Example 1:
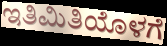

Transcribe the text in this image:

ಇತಿಮಿತಿಯೊಳಗೆ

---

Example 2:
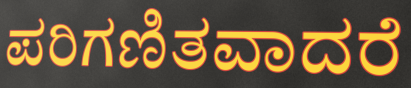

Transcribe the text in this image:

ಪರಿಗಣಿತವಾದರೆ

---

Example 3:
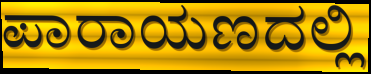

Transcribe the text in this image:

ಪಾರಾಯಣದಲ್ಲಿ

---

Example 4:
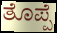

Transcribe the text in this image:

ತೊಪ್ಪೆ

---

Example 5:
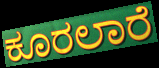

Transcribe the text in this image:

ಕೂರಲಾರೆ